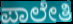
ಪಾಲೇತಿ